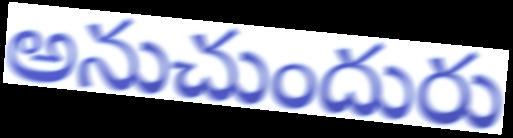
అనుచుందురు